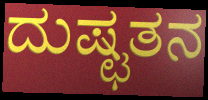
ದುಷ್ಟತನ